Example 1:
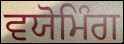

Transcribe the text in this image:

ਵਯੋਮਿੰਗ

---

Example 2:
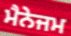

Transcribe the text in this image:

ਮੈਨੇਜਮ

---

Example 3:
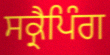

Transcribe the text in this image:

ਸਕ੍ਰੈਪਿੰਗ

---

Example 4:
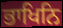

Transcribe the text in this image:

ਭਾਖਿਨਿ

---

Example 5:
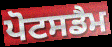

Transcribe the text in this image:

ਪੋਟਸਡੈਮ